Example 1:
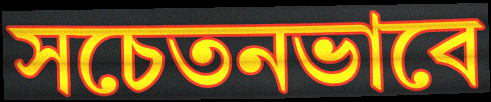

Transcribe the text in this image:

সচেতনভাবে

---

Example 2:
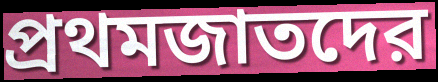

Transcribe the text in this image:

প্রথমজাতদের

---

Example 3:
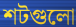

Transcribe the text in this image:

শটগুলো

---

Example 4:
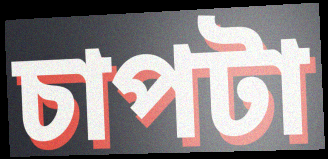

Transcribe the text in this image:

চাপটা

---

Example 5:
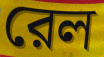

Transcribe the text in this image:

রেল